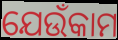
ଯେଉଁକାମ